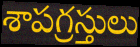
శాపగ్రస్తులు